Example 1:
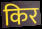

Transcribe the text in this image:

किर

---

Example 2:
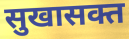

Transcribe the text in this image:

सुखासक्त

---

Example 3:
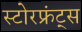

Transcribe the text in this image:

स्टोरफ्रंट्स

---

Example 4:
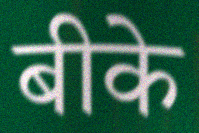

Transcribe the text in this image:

बीके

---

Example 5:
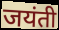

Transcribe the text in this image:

जयंती